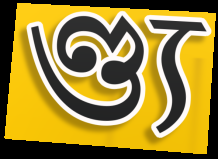
ণ্ড্য